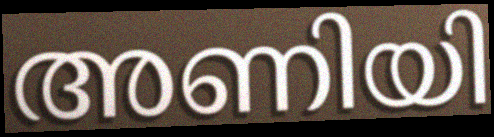
അണിയി